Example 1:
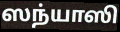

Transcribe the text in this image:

ஸந்யாஸி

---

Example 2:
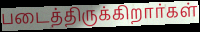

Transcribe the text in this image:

படைத்திருக்கிறார்கள்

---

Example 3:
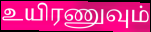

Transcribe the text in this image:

உயிரணுவும்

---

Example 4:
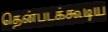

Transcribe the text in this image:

தென்படக்கூடிய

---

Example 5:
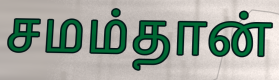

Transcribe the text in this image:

சமம்தான்